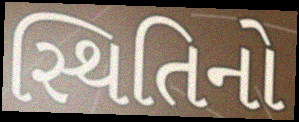
સ્થિતિનો